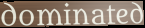
dominated